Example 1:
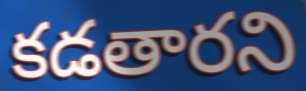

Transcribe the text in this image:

కడతారని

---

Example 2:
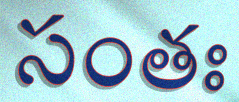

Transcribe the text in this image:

సంతః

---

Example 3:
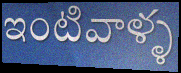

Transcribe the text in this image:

ఇంటివాళ్ళ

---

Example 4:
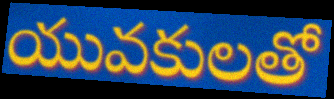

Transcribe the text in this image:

యువకులతో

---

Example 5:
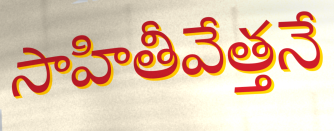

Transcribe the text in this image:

సాహితీవేత్తనే